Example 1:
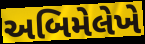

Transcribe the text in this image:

અબિમેલેખે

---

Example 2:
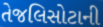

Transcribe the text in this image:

તેજલિસોટાની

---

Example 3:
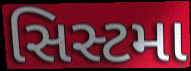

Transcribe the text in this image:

સિસ્ટમા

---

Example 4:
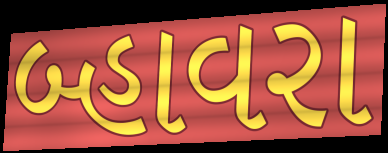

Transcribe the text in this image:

બ્હાવરા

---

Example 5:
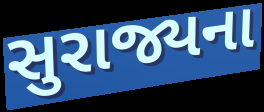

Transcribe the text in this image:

સુરાજ્યના